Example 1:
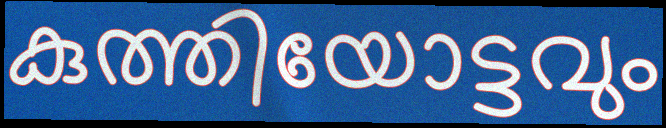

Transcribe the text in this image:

കുത്തിയോട്ടവും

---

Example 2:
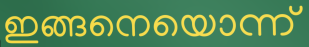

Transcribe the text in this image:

ഇങ്ങനെയൊന്ന്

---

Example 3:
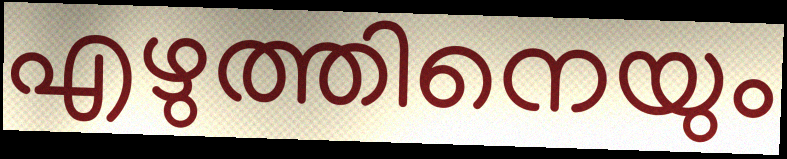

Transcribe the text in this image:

എഴുത്തിനെയും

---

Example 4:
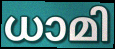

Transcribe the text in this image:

ധാമി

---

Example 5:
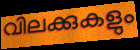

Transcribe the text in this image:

വിലക്കുകളും